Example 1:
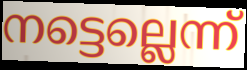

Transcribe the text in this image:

നട്ടെല്ലെന്ന്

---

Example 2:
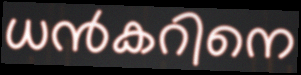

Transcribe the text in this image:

ധൻകറിനെ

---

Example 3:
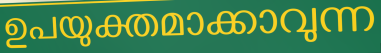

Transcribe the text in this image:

ഉപയുക്തമാക്കാവുന്ന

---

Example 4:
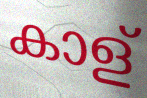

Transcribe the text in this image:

കാള്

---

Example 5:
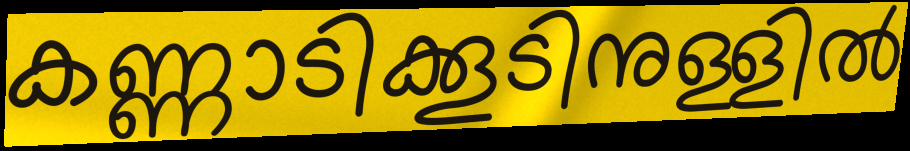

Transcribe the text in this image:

കണ്ണാടിക്കൂടിനുള്ളിൽ